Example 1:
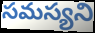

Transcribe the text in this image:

సమస్యని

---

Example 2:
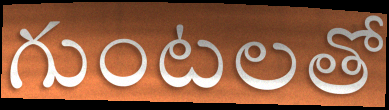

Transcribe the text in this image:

గుంటలతో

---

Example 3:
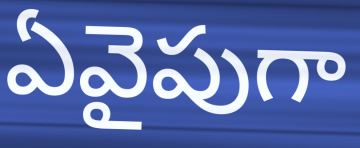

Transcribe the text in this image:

ఏవైపుగా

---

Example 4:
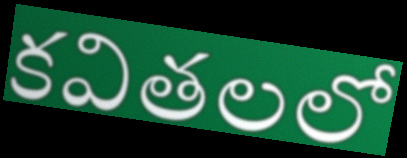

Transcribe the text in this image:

కవితలలో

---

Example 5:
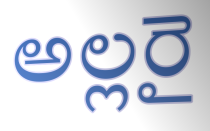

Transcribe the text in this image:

అల్లరై